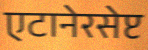
एटानेरसेप्ट